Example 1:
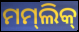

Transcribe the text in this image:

ମମ୍‌ଲିକ୍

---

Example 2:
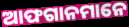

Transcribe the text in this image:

ଆଫଗାନମାନେ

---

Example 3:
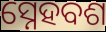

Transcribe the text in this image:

ସ୍ନେହବଶ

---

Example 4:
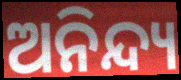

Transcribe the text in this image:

ଅନିନ୍ଦ୍ୟ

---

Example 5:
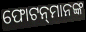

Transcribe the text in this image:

ଫୋଟନ୍‍ମାନଙ୍କ